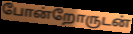
போன்றோருடன்